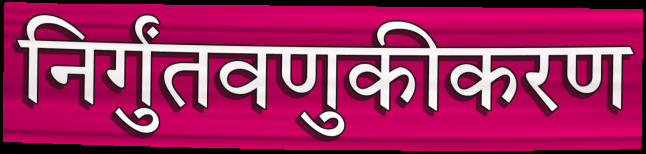
निर्गुंतवणुकीकरण